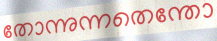
തോന്നുന്നതെന്തോ